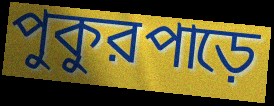
পুকুরপাড়ে